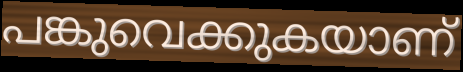
പങ്കുവെക്കുകയാണ്